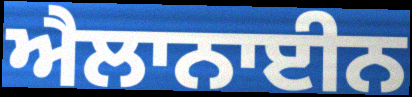
ਐਲਾਨਾਈਨ